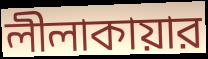
লীলাকায়ার